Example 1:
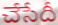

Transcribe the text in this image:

చేసేదీ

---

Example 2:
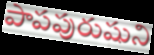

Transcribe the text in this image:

పాపపురుషుని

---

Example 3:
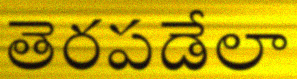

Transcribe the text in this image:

తెరపడేలా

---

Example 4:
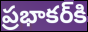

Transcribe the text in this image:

ప్రభాకర్‌కి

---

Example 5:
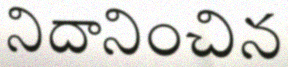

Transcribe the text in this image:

నిదానించిన